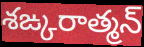
శఙ్కరాత్మన్